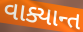
વાક્યાન્ત